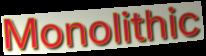
Monolithic